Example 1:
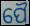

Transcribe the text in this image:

ପୈ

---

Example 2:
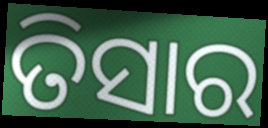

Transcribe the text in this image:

ତିସାର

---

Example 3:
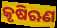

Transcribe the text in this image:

କୃଷିଋଣ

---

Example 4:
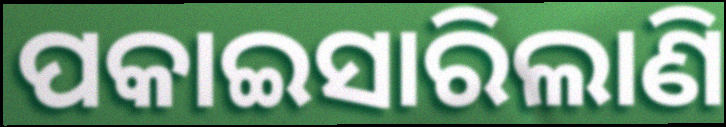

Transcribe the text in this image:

ପକାଇସାରିଲାଣି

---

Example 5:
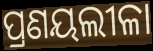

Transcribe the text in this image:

ପ୍ରଣୟଲୀଳା